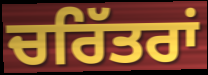
ਚਰਿੱਤਰਾਂ